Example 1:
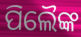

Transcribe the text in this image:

ପିଲୈଙ୍କ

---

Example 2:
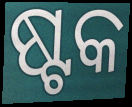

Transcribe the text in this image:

ଷ୍ଟକ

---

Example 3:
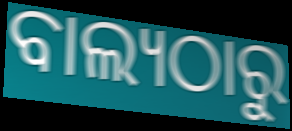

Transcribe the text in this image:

ବାଲ୍ୟଠାରୁ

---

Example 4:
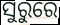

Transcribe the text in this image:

ସୁରୁରେ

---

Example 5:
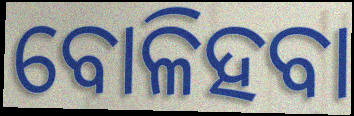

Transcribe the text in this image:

ବୋଳିହବା